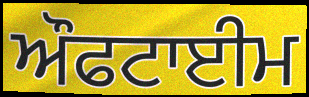
ਔਫਟਾਈਮ